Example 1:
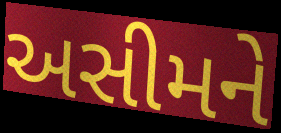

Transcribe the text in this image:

અસીમને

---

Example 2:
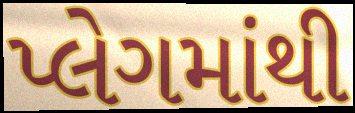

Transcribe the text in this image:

પ્લેગમાંથી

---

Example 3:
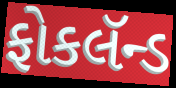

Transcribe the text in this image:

ફોકલૅન્ડ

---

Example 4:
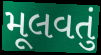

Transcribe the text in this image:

મૂલવતું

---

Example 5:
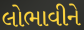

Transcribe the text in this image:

લોભાવીને